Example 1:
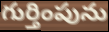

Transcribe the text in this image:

గుర్తింపును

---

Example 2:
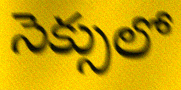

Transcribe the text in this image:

సెక్సులో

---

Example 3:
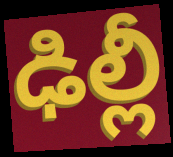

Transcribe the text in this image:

ఢిల్లీ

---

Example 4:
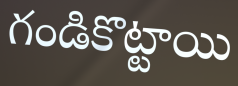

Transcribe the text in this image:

గండికొట్టాయి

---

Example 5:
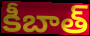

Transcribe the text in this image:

కీబాత్